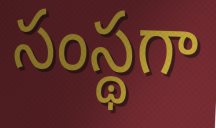
సంస్థగా